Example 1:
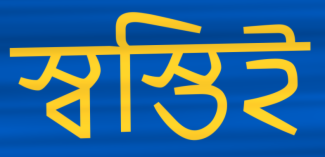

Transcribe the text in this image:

স্বস্তিই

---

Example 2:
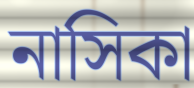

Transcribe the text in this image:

নাসিকা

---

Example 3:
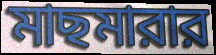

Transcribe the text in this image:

মাছমারার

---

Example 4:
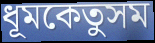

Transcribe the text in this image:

ধূমকেতুসম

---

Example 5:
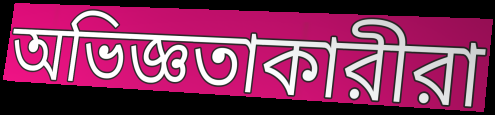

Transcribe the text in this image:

অভিজ্ঞতাকারীরা